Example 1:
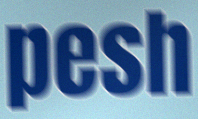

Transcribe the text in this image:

pesh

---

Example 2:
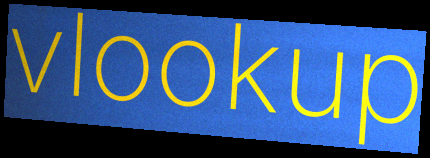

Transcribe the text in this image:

vlookup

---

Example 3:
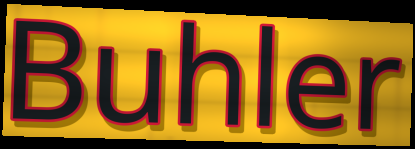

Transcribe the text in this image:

Buhler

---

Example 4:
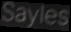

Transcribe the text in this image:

Sayles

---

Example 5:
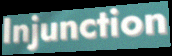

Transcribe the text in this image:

Injunction